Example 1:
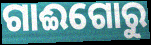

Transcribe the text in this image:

ଗାଈଗୋରୁ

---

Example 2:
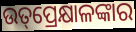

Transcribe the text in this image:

ଉତ୍‌ପ୍ରେକ୍ଷାଳଙ୍କାର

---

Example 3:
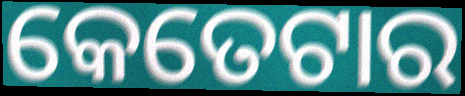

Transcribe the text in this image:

କେତେଟାର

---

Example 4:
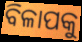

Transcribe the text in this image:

ବିଳାପକୁ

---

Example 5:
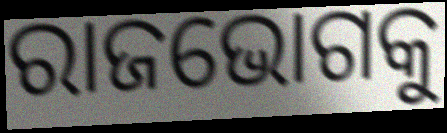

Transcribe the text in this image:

ରାଜଭୋଗକୁ